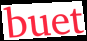
buet